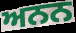
ਅਨਨ